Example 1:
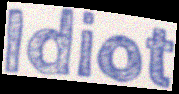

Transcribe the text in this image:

Idiot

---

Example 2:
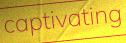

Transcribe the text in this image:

captivating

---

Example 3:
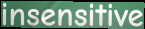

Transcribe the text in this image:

insensitive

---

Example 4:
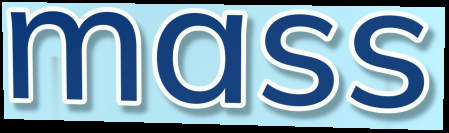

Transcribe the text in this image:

mass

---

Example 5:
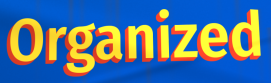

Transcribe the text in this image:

Organized